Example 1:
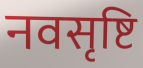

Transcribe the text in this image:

नवसृष्टि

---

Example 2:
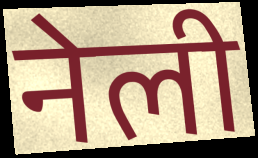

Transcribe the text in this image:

नेली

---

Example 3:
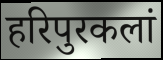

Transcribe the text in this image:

हरिपुरकलां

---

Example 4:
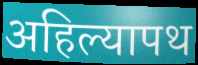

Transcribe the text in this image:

अहिल्यापथ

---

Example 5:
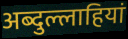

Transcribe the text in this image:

अब्दुल्लाहियां